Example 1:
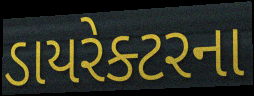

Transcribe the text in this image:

ડાયરેક્ટરના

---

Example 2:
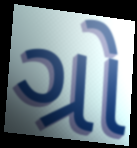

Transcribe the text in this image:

ગ્રો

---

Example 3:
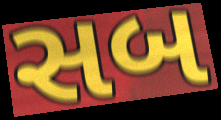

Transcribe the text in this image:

સબ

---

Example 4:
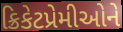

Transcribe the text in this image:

ક્રિકેટપ્રેમીઓને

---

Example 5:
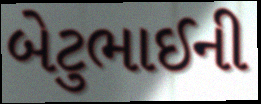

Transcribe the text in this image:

બેટુભાઈની